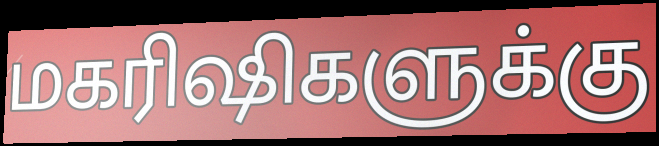
மகரிஷிகளுக்கு